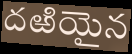
దఱియైన